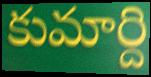
కుమార్ది